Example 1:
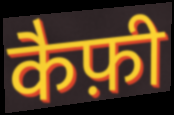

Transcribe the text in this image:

कैफ़ी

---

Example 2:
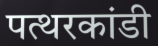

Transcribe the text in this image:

पत्थरकांडी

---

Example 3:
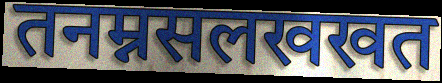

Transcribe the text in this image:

तनम्नसलखखत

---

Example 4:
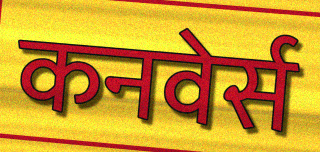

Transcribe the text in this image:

कनवेर्स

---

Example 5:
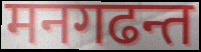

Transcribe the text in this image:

मनगढन्त